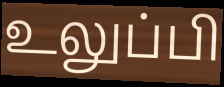
உலுப்பி